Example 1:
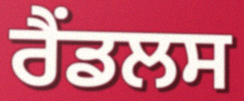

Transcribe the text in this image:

ਰੈਂਡਲਸ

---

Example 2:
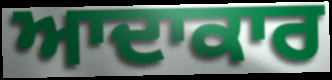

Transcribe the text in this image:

ਆਦਾਕਾਰ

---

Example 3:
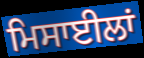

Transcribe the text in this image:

ਮਿਸਾਈਲਾਂ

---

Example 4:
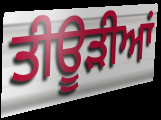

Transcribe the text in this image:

ਤੀਊੜੀਆਂ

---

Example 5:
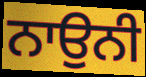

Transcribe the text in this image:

ਨਾਉਨੀ